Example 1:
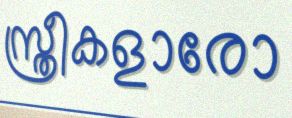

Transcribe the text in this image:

സ്ത്രീകളാരോ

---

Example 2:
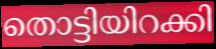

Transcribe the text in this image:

തൊട്ടിയിറക്കി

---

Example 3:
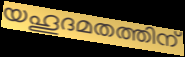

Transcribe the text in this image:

യഹൂദമതത്തിന്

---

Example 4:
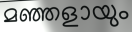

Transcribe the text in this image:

മഞ്ഞളായും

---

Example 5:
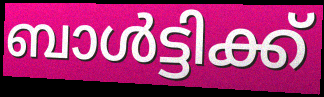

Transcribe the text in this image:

ബാൾട്ടിക്ക്